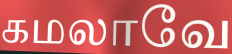
கமலாவே